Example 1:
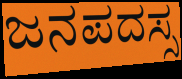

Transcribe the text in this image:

ಜನಪದಸ್ಸ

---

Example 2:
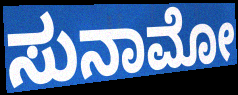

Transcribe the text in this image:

ಸುನಾಮೋ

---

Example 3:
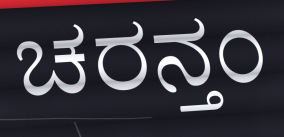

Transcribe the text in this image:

ಚರನ್ತಂ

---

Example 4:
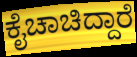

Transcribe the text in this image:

ಕೈಚಾಚಿದ್ದಾರೆ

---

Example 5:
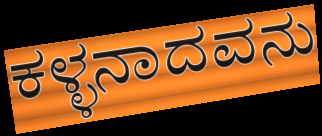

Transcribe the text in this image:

ಕಳ್ಳನಾದವನು